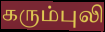
கரும்புலி